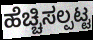
ಹೆಚ್ಚಿಸಲ್ಪಟ್ಟ